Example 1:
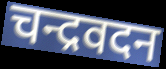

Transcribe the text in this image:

चन्द्रवदन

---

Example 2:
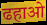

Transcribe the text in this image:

ढहाओ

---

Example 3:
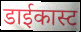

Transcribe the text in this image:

डाईकास्ट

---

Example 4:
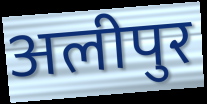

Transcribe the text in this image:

अलीपुर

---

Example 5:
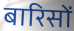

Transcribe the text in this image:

बारिसों